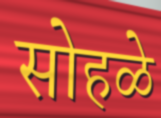
सोहळे